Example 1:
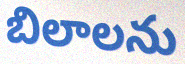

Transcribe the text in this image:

బిలాలను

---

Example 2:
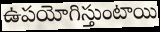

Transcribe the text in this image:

ఉపయోగిస్తుంటాయి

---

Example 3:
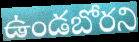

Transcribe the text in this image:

ఉండబోరని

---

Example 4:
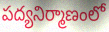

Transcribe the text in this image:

పద్యనిర్మాణంలో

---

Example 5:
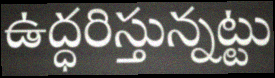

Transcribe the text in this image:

ఉద్ధరిస్తున్నట్టు